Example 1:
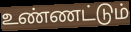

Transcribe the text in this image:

உண்ணட்டும்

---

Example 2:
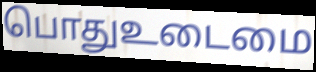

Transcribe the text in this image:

பொதுஉடைமை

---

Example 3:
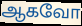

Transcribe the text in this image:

ஆகவோ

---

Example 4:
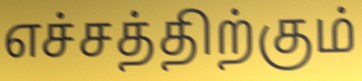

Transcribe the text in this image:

எச்சத்திற்கும்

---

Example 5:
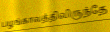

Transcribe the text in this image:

பழங்காலத்திலிருந்தே